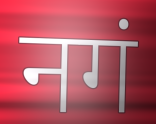
नगं